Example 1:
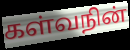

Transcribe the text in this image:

கள்வநின்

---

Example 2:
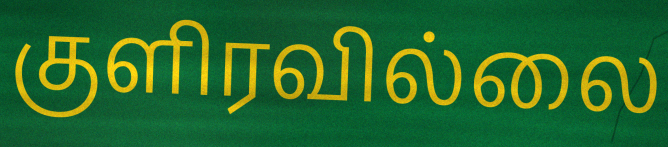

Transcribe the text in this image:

குளிரவில்லை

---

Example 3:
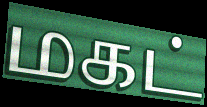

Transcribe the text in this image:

மகட்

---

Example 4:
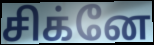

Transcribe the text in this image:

சிக்னே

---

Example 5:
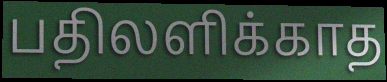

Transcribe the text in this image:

பதிலளிக்காத